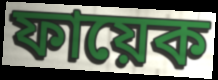
ফায়েক